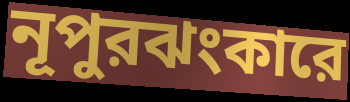
নূপুরঝংকারে